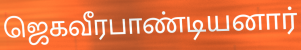
ஜெகவீரபாண்டியனார்